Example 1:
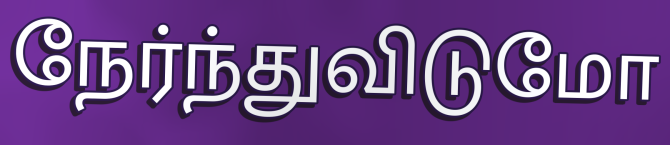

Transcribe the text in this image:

நேர்ந்துவிடுமோ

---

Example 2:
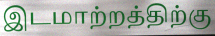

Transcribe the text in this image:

இடமாற்றத்திற்கு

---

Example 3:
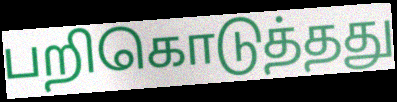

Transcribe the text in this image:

பறிகொடுத்தது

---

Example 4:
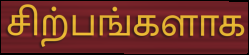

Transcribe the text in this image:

சிற்பங்களாக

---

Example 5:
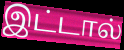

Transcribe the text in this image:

இட்டால்